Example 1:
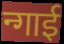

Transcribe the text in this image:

न्गाई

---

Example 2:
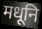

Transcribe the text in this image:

मधूनि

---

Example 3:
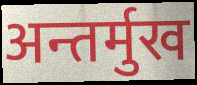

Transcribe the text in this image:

अन्तर्मुख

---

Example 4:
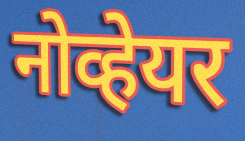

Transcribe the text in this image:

नोव्हेयर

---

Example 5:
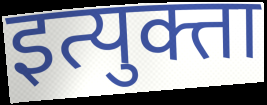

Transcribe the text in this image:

इत्युक्ता